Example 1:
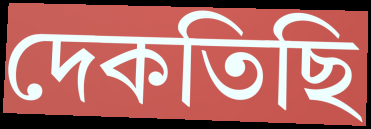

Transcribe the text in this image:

দেকতিছি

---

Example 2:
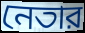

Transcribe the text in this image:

নেতার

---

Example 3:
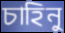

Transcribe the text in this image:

চাহিনু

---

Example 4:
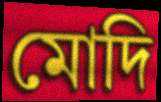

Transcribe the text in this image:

মোদি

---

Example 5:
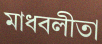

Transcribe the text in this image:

মাধবলীতা